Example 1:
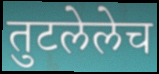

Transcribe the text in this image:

तुटलेलेच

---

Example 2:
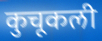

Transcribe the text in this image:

कुचूकली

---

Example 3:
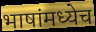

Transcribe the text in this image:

भाषांमध्येच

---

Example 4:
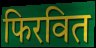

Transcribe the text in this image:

फिरवित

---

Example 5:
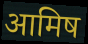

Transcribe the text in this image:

आमिष